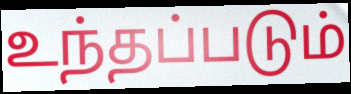
உந்தப்படும்